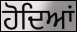
ਹੋਦਿਆਂ